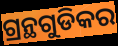
ଗ୍ରନ୍ଥଗୁଡିକର